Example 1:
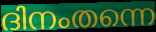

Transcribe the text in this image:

ദിനംതന്നെ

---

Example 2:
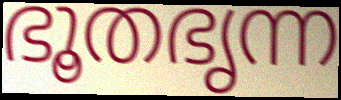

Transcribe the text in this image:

ഭൂതഭൃന്ന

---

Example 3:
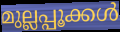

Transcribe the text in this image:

മുല്ലപ്പൂക്കൾ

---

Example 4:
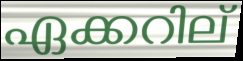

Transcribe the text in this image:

ഏക്കറില്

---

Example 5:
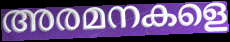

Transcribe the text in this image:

അരമനകളെ